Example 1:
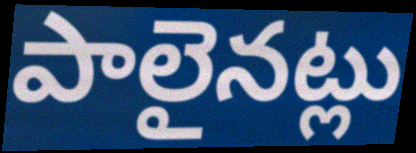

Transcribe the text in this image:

పాలైనట్లు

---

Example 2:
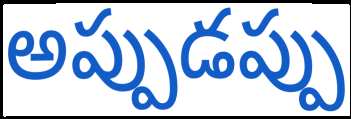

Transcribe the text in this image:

అప్పుడప్పు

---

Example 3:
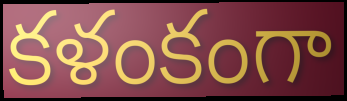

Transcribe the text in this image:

కళంకంగా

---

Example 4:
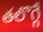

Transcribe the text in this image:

తలొగ్గే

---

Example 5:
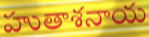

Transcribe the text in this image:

హుతాశనాయ